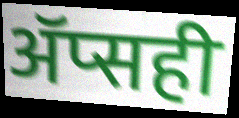
ॲप्सही